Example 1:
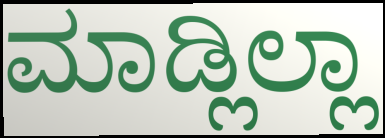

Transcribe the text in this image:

ಮಾಡ್ಲಿಲ್ಲಾ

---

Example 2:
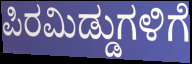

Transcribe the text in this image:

ಪಿರಮಿಡ್ಡುಗಳಿಗೆ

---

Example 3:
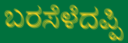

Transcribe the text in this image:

ಬರಸೆಳೆದಪ್ಪಿ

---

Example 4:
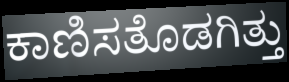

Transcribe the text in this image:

ಕಾಣಿಸತೊಡಗಿತ್ತು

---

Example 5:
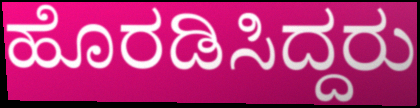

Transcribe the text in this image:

ಹೊರಡಿಸಿದ್ದರು